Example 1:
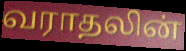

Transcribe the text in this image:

வராதலின்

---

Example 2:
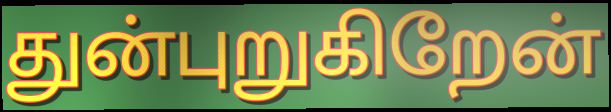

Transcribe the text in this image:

துன்புறுகிறேன்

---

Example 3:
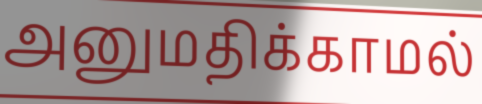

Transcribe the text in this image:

அனுமதிக்காமல்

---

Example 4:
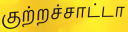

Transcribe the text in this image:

குற்றச்சாட்டா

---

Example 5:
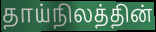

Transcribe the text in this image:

தாய்நிலத்தின்